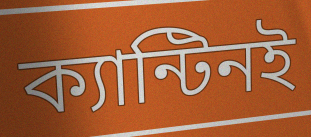
ক্যান্টিনই